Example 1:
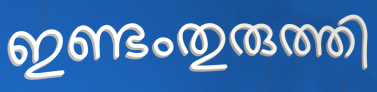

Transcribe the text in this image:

ഇണ്ടംതുരുത്തി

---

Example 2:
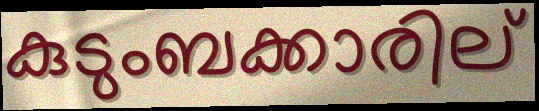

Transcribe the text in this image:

കുടുംബക്കാരില്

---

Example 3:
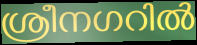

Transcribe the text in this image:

ശ്രീനഗറിൽ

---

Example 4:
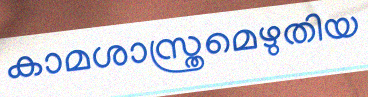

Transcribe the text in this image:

കാമശാസ്ത്രമെഴുതിയ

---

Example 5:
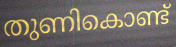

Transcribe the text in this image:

തുണികൊണ്ട്